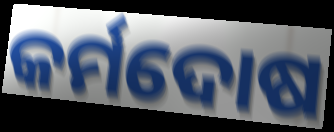
କର୍ମଦୋଷ